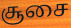
சூசை